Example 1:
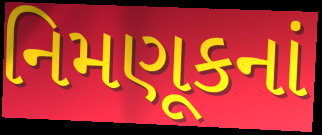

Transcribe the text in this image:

નિમણૂકનાં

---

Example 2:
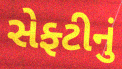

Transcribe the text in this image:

સેફ્ટીનું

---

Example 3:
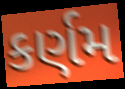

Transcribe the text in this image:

કર્ણમ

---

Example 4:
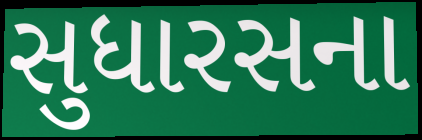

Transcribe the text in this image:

સુધારસના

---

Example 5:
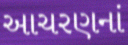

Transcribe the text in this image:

આચરણનાં